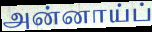
அன்னாய்ப்